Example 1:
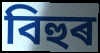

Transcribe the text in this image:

বিহুৰ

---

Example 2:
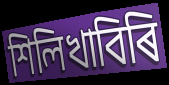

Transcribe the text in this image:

শিলিখাবিৰি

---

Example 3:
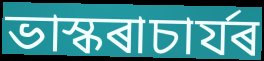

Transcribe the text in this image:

ভাস্কৰাচাৰ্যৰ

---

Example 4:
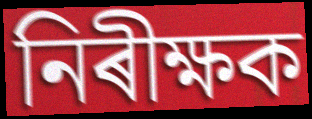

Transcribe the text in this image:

নিৰীক্ষক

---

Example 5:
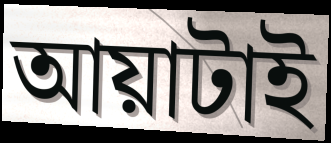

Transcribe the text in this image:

আয়াটাই